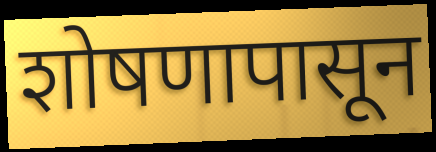
शोषणापासून